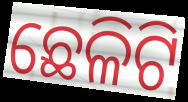
ଛେଳିଟି